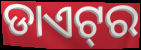
ଡାଏଟ୍‌ର